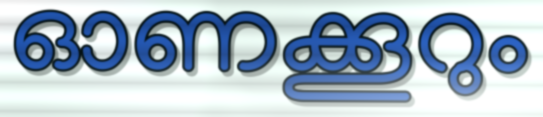
ഓണക്കൂറും